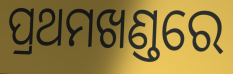
ପ୍ରଥମଖଣ୍ଡରେ